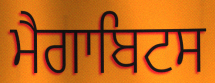
ਮੈਗਾਬਿਟਸ